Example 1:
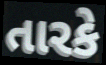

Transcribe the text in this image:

તારકે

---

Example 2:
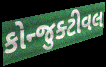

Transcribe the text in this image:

કોન્જુક્ટીવલ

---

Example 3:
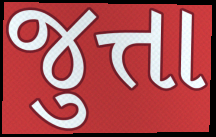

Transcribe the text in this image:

જુત્તા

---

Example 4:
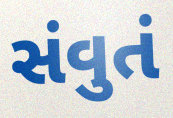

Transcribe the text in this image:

સંવુતં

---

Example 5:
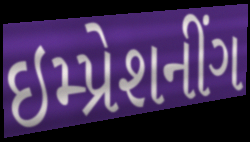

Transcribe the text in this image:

ઇમ્પ્રેશનીંગ